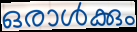
ഒരാൾക്കും